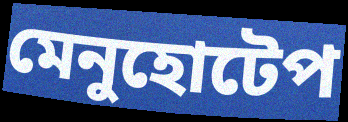
মেনুহোটেপ